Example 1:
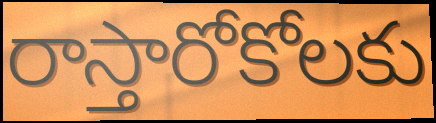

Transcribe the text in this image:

రాస్తారోకోలకు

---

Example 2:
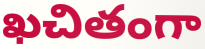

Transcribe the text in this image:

ఖచితంగా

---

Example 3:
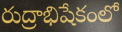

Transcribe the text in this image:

రుద్రాభిషేకంలో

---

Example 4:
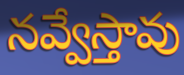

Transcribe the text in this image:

నవ్వేస్తావు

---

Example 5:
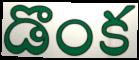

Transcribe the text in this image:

డొంక